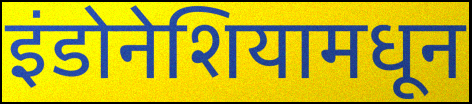
इंडोनेशियामधून